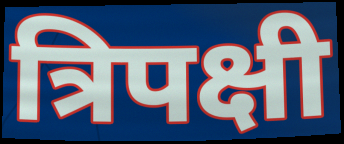
त्रिपक्षी